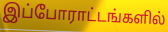
இப்போராட்டங்களில்